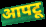
आपटू